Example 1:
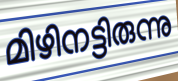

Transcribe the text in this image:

മിഴിനട്ടിരുന്നു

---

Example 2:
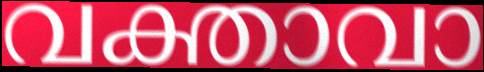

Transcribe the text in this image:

വക്താവാ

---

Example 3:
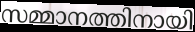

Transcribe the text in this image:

സമ്മാനത്തിനായി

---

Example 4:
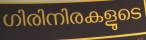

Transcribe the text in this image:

ഗിരിനിരകളുടെ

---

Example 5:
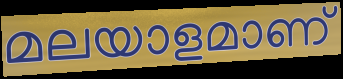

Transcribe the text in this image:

മലയാളമാണ്